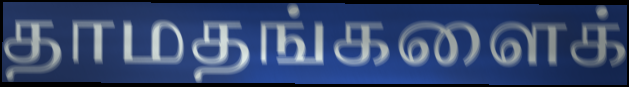
தாமதங்களைக்